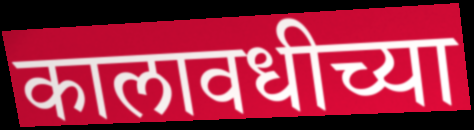
कालावधीच्या